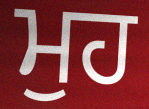
ਮੁਹ